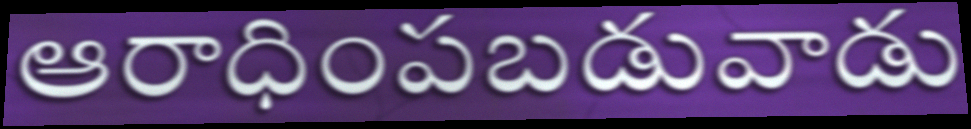
ఆరాధింపబడువాడు